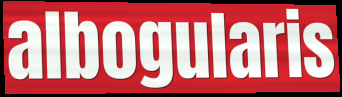
albogularis